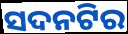
ସଦନଟିର